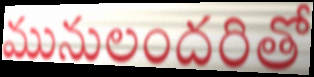
మునులందరితో